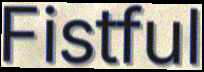
Fistful